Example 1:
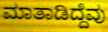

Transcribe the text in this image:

ಮಾತಾಡಿದ್ದೆವು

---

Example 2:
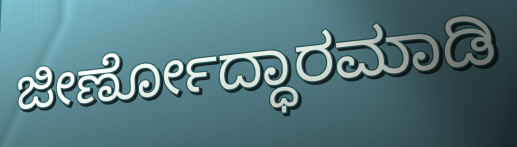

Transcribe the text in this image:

ಜೀರ್ಣೋದ್ಧಾರಮಾಡಿ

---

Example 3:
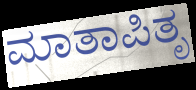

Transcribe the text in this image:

ಮಾತಾಪಿತೃ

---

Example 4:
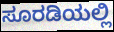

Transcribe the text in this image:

ಸೂರಡಿಯಲ್ಲಿ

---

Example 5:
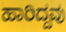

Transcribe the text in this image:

ಹಾರಿದ್ದವು